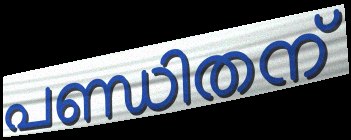
പണ്ഡിതന്